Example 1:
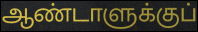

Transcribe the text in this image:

ஆண்டாளுக்குப்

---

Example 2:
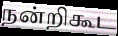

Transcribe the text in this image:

நன்றிகூட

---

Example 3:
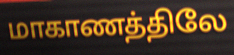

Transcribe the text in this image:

மாகாணத்திலே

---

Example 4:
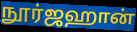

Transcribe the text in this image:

நூர்ஜஹான்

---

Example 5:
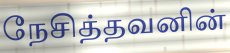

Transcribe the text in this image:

நேசித்தவனின்